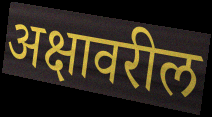
अक्षावरील